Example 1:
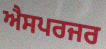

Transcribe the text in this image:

ਐਸਪਰਜਰ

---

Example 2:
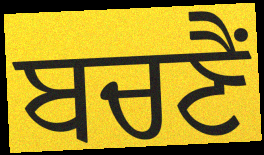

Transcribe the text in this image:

ਬਚਣੈਂ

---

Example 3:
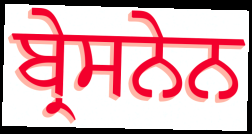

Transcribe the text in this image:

ਬ੍ਰੇਸਨੇਨ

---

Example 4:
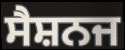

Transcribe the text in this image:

ਸੈਸ਼ਨਜ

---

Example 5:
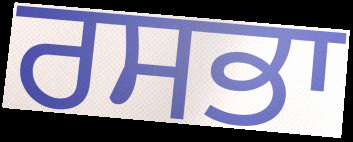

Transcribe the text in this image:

ਰਸਭਾ